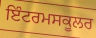
ਇੰਟਰਮਸਕੂਲਰ